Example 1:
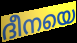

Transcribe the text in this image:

ദീനയെ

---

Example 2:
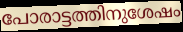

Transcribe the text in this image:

പോരാട്ടത്തിനുശേഷം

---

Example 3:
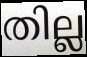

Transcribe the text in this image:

തില്ല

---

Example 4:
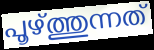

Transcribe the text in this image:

പൂഴ്ത്തുന്നത്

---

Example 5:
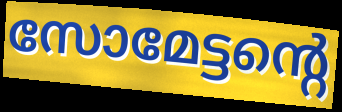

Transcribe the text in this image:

സോമേട്ടന്റെ